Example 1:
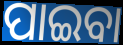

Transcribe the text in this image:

ପାଇବା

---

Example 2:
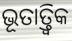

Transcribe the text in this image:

ଭୂତାତ୍ତ୍ୱିକ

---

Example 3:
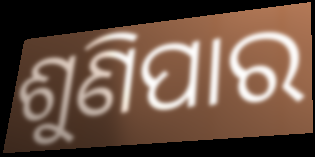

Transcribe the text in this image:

ଶୁଣିପାର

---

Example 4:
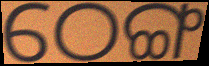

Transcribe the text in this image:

ଠେଙ୍ଗ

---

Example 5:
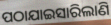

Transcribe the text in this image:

ପଠାଯାଇସାରିଲାଣି